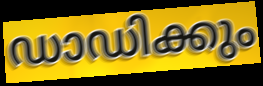
ഡാഡിക്കും